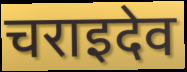
चराइदेव